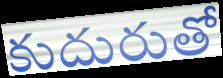
కుదురుతో